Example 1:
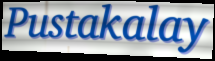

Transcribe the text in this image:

Pustakalay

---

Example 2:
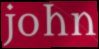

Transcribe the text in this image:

john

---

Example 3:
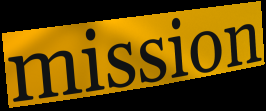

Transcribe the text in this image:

mission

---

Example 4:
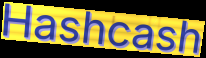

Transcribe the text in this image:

Hashcash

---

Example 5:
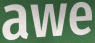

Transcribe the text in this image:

awe